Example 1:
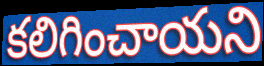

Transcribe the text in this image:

కలిగించాయని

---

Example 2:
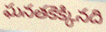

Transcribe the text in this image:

ఘనతకెక్కినది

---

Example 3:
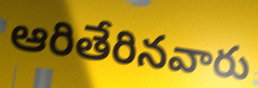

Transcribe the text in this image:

ఆరితేరినవారు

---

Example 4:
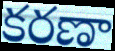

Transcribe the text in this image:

కరణా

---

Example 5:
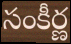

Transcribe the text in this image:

సంకీర్ణ